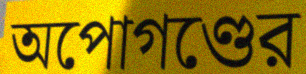
অপোগণ্ডের